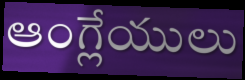
ఆంగ్లేయులు